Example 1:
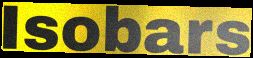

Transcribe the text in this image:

Isobars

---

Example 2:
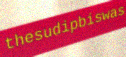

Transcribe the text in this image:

thesudipbiswas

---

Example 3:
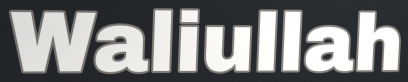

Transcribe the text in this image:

Waliullah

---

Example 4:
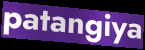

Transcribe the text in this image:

patangiya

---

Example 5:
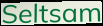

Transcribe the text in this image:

Seltsam